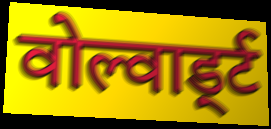
वोल्वार्ड्ट